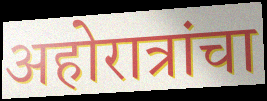
अहोरात्रांचा